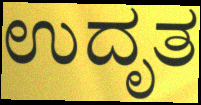
ಉದೃತ